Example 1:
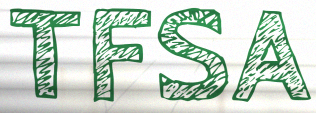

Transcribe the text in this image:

TFSA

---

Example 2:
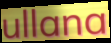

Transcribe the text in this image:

ullana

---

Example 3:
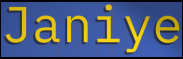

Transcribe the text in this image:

Janiye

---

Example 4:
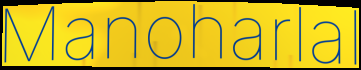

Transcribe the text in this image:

Manoharlal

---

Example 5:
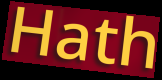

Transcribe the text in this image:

Hath